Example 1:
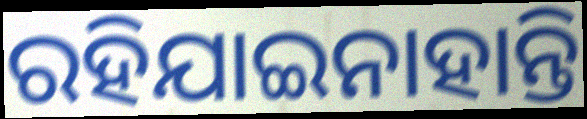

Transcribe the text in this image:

ରହିଯାଇନାହାନ୍ତି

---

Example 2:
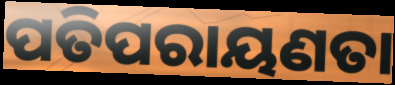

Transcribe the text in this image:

ପତିପରାୟଣତା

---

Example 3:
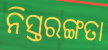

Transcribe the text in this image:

ନିସ୍ତରଙ୍ଗତା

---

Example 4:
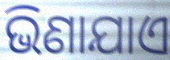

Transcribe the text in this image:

ଭିଣାଯାଏ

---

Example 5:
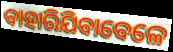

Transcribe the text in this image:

ବାହାରିଯିବାବେଳେ